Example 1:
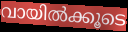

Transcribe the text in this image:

വായിൽക്കൂടെ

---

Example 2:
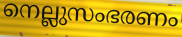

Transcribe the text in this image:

നെല്ലുസംഭരണം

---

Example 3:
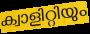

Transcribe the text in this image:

ക്വാളിറ്റിയും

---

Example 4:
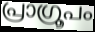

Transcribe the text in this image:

പ്രാഗ്രൂപം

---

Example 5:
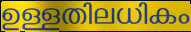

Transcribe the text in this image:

ഉള്ളതിലധികം